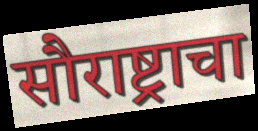
सौराष्ट्राचा